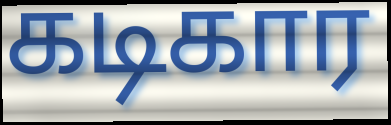
கடிகார